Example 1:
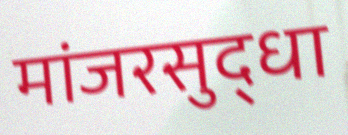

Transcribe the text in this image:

मांजरसुद्धा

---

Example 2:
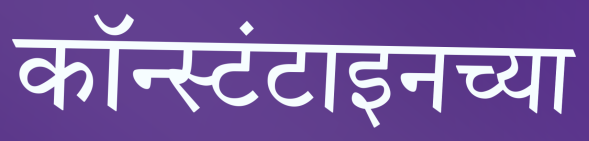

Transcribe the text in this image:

कॉन्स्टंटाइनच्या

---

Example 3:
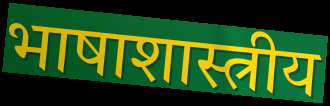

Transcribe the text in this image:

भाषाशास्त्रीय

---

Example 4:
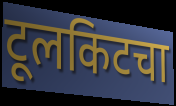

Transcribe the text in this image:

टूलकिटचा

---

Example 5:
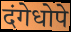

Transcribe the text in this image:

दंगेधोपे